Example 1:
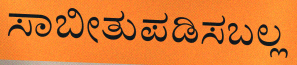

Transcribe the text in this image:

ಸಾಬೀತುಪಡಿಸಬಲ್ಲ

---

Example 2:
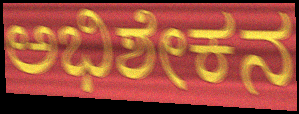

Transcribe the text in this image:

ಅಭಿಶೇಕನ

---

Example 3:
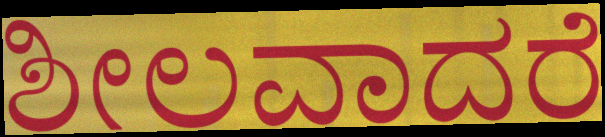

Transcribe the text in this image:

ಶೀಲವಾದರೆ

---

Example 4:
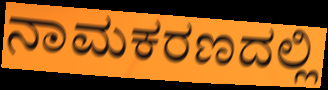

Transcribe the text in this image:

ನಾಮಕರಣದಲ್ಲಿ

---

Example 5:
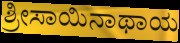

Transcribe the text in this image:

ಶ್ರೀಸಾಯಿನಾಥಾಯ